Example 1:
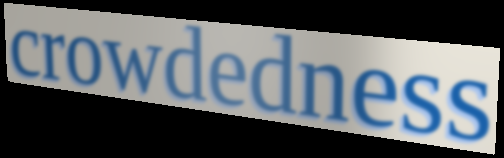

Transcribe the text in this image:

crowdedness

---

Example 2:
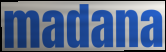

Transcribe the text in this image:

madana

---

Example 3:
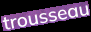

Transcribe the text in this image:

trousseau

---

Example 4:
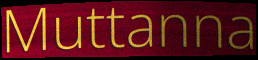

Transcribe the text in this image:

Muttanna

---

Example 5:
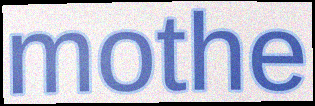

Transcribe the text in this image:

mothe